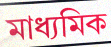
মাধ্যমিক